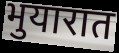
भुयारात